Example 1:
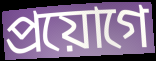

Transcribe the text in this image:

প্ৰয়োগে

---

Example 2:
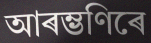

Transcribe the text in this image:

আৰম্ভণিৰে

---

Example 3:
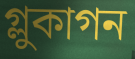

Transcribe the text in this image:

গ্লুকাগন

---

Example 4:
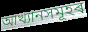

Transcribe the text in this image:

আখ্যানসমূহৰ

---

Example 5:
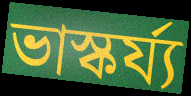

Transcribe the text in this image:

ভাস্কৰ্য্য